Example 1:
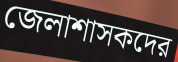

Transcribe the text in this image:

জেলাশাসকদের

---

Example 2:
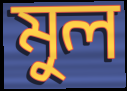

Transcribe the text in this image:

মুল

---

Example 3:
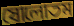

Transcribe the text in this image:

ষোলোতম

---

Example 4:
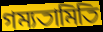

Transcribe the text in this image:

গম্যতামিতি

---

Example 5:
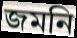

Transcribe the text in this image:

জমনি